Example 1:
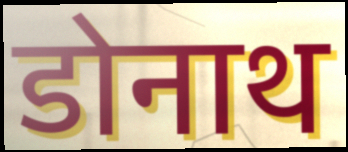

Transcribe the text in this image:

डोनाथ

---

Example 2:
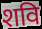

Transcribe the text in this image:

शवि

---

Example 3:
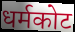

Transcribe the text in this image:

धर्मकोट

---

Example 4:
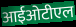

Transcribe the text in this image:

आईओटीएल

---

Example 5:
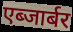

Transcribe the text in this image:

एब्जार्बर